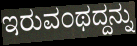
ಇರುವಂಥದ್ದನ್ನು